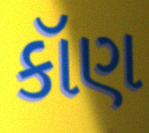
કૉણ